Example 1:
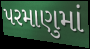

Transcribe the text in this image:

પરમાણુમાં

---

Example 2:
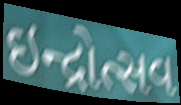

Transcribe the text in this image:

ઇન્દ્રોત્સવ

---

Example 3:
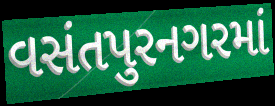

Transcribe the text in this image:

વસંતપુરનગરમાં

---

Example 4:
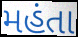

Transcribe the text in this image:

મહંતા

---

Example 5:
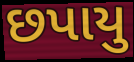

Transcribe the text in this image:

છપાયુ